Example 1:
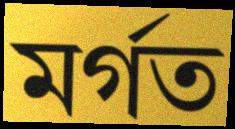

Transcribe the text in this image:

মৰ্গত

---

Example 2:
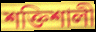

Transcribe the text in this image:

শক্তিশালী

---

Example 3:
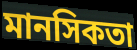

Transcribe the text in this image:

মানসিকতা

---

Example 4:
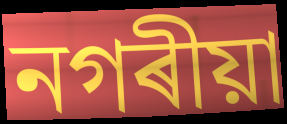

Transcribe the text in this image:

নগৰীয়া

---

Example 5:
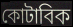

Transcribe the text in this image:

কোটাবিক